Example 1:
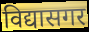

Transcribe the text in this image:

विद्यासगर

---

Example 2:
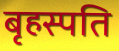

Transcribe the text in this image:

बृहस्पति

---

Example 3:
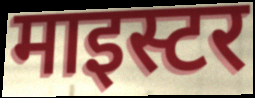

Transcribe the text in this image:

माइस्टर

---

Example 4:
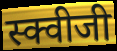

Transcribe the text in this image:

स्क्वीजी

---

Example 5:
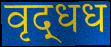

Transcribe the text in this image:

वृद्धध